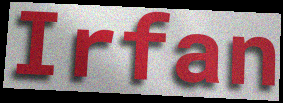
Irfan